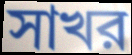
সাখর